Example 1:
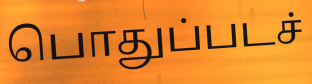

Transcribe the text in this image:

பொதுப்படச்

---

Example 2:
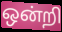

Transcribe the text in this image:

ஒன்றி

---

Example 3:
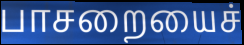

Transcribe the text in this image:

பாசறையைச்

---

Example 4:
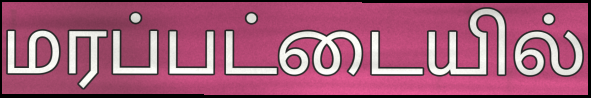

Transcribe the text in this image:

மரப்பட்டையில்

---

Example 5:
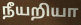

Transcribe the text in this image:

நீயறியா